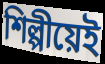
শিল্পীয়েই